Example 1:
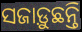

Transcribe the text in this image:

ସଜାଡ଼ୁଛନ୍ତି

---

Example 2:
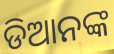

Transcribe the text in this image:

ଡିଆନଙ୍କ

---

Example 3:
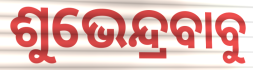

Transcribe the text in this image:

ଶୁଭେନ୍ଦ୍ରବାବୁ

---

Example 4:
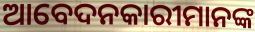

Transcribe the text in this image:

ଆବେଦନକାରୀମାନଙ୍କ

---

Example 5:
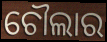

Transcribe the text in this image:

ଚୌଲାର